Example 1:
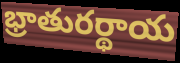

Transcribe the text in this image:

భ్రాతురర్థాయ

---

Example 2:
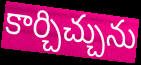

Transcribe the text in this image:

కార్చిచ్చును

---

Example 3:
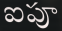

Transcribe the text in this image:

ఐపూ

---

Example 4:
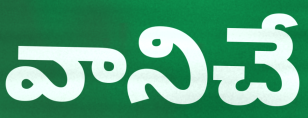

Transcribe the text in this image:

వానిచే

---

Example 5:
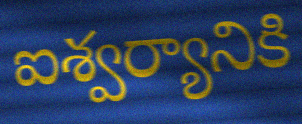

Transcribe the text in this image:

ఐశ్వర్యానికి